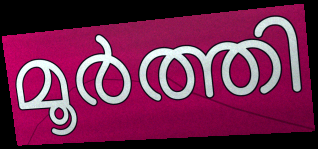
മൂർത്തി